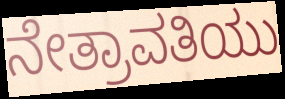
ನೇತ್ರಾವತಿಯು